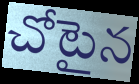
చోటైన